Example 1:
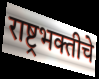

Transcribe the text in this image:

राष्ट्रभक्तीचे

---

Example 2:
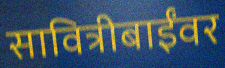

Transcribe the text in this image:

सावित्रीबाईंवर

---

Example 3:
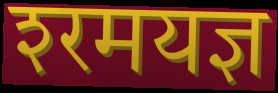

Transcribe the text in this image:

श्रमयज्ञ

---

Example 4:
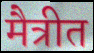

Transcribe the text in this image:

मैत्रीत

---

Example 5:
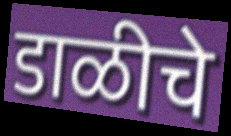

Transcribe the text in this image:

डाळीचे